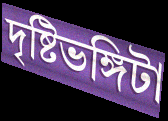
দৃষ্টিভঙ্গিটা